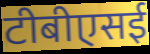
टीबीएसई